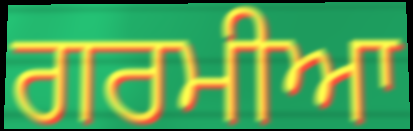
ਗਰਮੀਆ